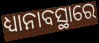
ଧ୍ୟାନାବସ୍ଥାରେ